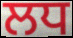
ਲਧ